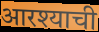
आरश्याची